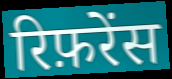
रिफ़रेंस